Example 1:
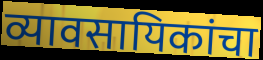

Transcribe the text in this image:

व्यावसायिकांचा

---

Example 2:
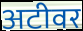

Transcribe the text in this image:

अटीवर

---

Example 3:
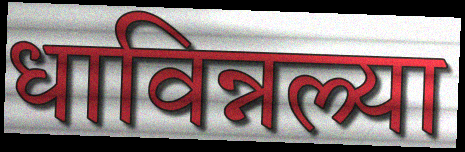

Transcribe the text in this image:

धाविन्नल्या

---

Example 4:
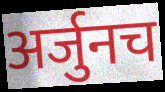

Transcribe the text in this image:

अर्जुनच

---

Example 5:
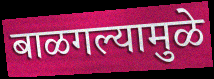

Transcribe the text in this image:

बाळगल्यामुळे